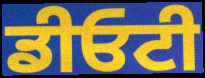
ਡੀਓਟੀ